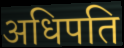
अधिपति